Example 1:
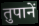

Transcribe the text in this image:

तुपानें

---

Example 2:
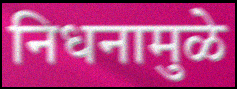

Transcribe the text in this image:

निधनामुळे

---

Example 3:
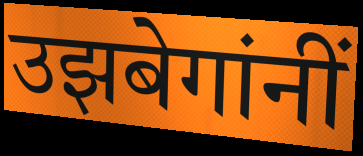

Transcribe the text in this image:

उझबेगांनीं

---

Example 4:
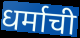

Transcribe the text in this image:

धर्माची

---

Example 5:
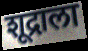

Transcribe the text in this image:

शूद्राला